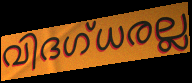
വിദഗ്ധരല്ല